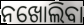
ନଖୋଲିବା